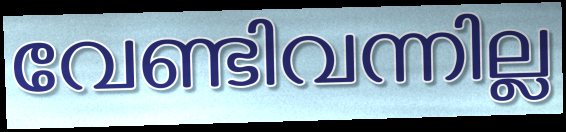
വേണ്ടിവന്നില്ല